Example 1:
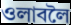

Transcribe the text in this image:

ওলাবলৈ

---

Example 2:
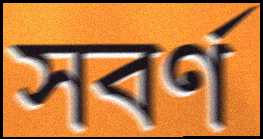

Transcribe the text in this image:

সবৰ্ণ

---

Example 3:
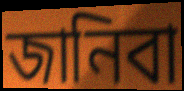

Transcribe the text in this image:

জানিবা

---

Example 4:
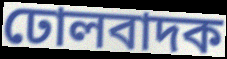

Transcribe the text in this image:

ঢোলবাদক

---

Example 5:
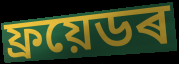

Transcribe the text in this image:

ফ্ৰয়েডৰ